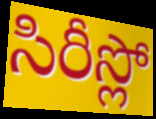
సిరీస్లో